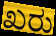
ಖರು